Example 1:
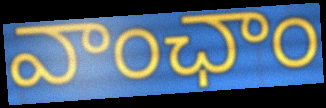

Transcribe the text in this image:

వాంఛాం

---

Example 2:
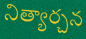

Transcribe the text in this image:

నిత్యార్చన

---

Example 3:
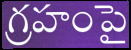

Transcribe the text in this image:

గ్రహంపై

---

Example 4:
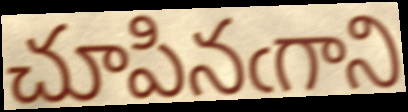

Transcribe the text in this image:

చూపినఁగాని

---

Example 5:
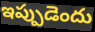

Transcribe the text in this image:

ఇప్పుడెందు